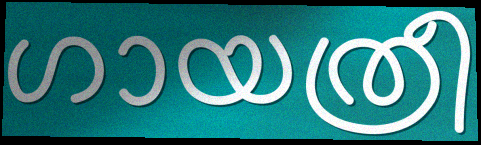
ഗായത്രീ